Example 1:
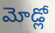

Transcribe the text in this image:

మోడ్లో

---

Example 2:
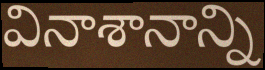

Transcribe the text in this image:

వినాశానాన్ని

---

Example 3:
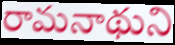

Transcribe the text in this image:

రామనాథుని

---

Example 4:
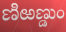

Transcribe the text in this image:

ణిఱణ్డుం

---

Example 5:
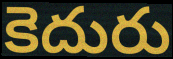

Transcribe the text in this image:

కెదురు